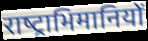
राष्ट्राभिमानियों